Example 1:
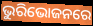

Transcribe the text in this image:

ଭୁରିଭୋଜନରେ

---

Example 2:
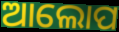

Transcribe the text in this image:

ଆଲୋପ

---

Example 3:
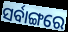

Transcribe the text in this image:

ସର୍ବାଙ୍ଗରେ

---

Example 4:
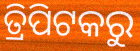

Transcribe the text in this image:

ତ୍ରିପିଟକରୁ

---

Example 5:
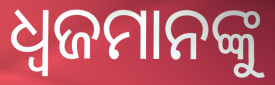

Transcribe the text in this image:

ଧ୍ୱଜମାନଙ୍କୁ